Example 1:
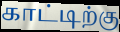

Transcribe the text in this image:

காட்டிற்கு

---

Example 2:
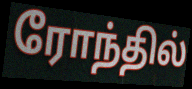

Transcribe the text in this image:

ரோந்தில்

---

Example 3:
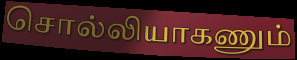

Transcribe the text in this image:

சொல்லியாகணும்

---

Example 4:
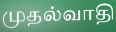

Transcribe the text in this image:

முதல்வாதி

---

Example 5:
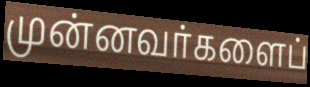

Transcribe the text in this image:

முன்னவர்களைப்